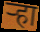
ऱ्हा